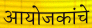
आयोजकांचे